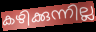
കഴിക്കുന്നില്ല